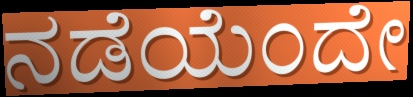
ನಡೆಯೆಂದೇ